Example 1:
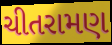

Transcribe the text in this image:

ચીતરામણ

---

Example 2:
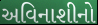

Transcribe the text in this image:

અવિનાશીનો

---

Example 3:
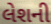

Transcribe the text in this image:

લેશની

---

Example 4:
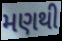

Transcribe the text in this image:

મણથી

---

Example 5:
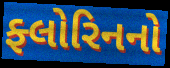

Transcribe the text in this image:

ફ્લોરિનનો